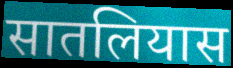
सातलियास